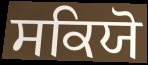
ਸਕਿਯੋ